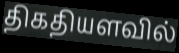
திகதியளவில்